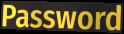
Password